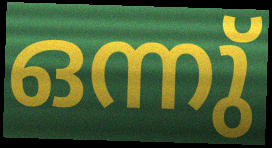
ഒന്നു്